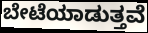
ಬೇಟೆಯಾಡುತ್ತವೆ